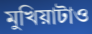
মুখিয়াটাও